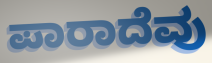
ಪಾರಾದೆವು